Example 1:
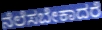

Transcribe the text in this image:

ನೆಲೆಸಬೇಕಾದರೆ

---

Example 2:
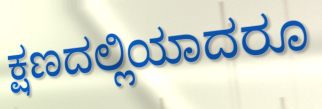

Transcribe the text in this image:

ಕ್ಷಣದಲ್ಲಿಯಾದರೂ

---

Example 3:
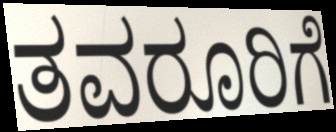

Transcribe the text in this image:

ತವರೂರಿಗೆ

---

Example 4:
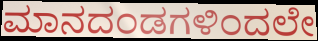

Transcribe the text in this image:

ಮಾನದಂಡಗಳಿಂದಲೇ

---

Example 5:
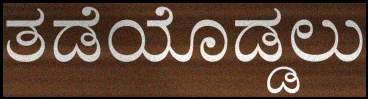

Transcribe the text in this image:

ತಡೆಯೊಡ್ಡಲು